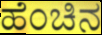
ಹೆಂಚಿನ